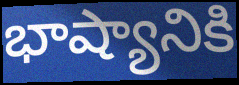
భాష్యానికి